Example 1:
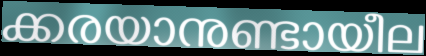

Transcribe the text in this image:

ക്കരയാനുണ്ടായീല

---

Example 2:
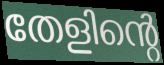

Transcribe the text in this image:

തേളിന്റെ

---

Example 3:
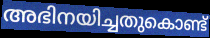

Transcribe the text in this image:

അഭിനയിച്ചതുകൊണ്ട്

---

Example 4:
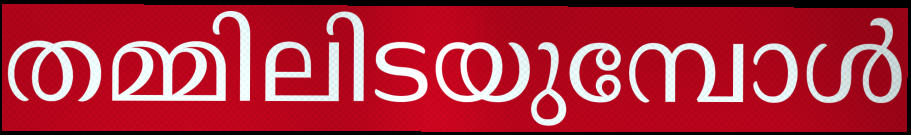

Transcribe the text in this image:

തമ്മിലിടയുമ്പോൾ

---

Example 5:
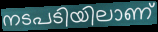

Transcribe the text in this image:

നടപടിയിലാണ്